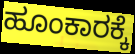
ಹೂಂಕಾರಕ್ಕೆ